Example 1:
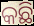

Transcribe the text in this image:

କଛି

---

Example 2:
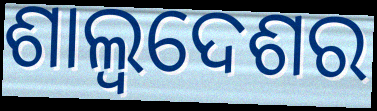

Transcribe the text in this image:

ଶାଲ୍ୱଦେଶର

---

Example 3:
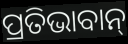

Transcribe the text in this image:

ପ୍ରତିଭାବାନ୍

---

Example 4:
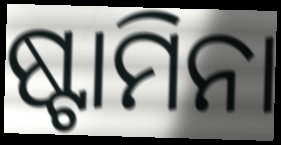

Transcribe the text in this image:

ଷ୍ଟାମିନା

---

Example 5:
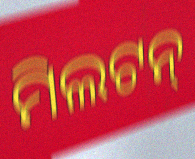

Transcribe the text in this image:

ମିଲଟନ୍